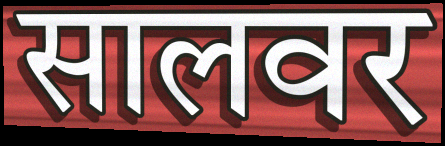
सालवर